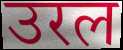
उरल